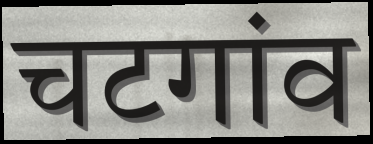
चटगांव